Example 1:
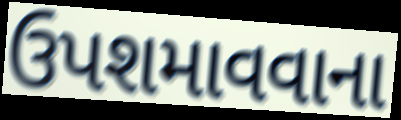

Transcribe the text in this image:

ઉપશમાવવાના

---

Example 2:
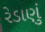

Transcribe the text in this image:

રેડાણું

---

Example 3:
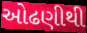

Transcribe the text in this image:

ઓઢણીથી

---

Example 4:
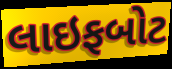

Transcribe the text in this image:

લાઇફબોટ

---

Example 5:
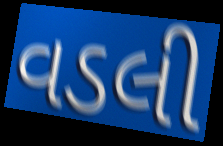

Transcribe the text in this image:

વડલી